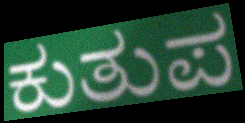
ಕುತುಪ